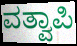
ವತ್ವಾಪಿ